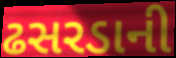
ઢસરડાની